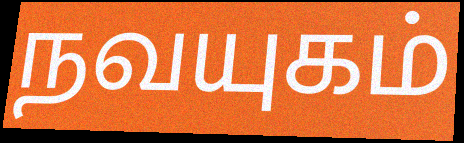
நவயுகம்